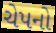
ચેપનો